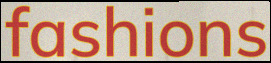
fashions